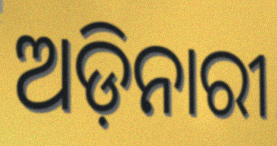
ଅଡ଼ିନାରୀ